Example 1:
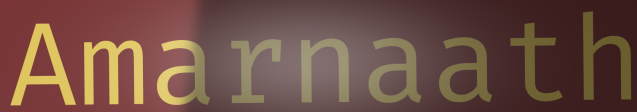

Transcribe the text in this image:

Amarnaath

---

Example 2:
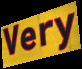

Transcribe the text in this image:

Very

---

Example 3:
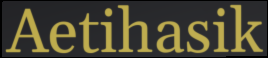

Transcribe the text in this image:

Aetihasik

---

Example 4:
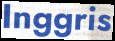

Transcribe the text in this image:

Inggris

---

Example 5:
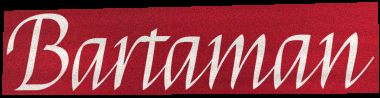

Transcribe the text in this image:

Bartaman